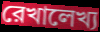
রেখালেখ্য